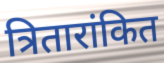
त्रितारांकित